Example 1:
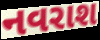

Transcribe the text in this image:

નવરાશ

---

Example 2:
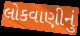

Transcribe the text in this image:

લોકવાણીનું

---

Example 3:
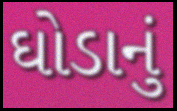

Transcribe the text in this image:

ઘોડાનું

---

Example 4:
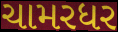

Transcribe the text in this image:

ચામરધર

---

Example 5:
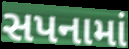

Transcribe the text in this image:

સપનામાં